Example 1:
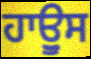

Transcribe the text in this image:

ਹਾਊੁਸ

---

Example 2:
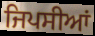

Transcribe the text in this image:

ਜਿਪਸੀਆਂ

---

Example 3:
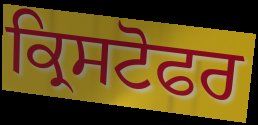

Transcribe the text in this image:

ਕ੍ਰਿਸਟੋਫਰ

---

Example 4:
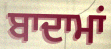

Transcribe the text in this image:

ਬਾਦਾਮਾਂ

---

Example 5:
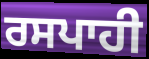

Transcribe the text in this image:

ਰਸਪਾਹੀ